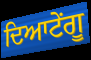
ਦਿਆਟੇਂਗੂ